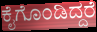
ಕೈಗೊಂಡಿದ್ದರೆ